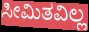
ಸೀಮಿತವಿಲ್ಲ